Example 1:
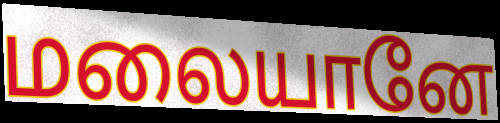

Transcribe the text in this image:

மலையானே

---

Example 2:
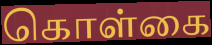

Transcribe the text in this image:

கொள்கை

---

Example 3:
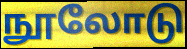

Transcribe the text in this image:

நூலோடு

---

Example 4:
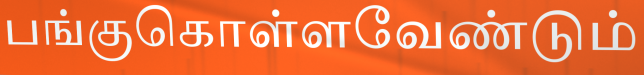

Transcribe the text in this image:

பங்குகொள்ளவேண்டும்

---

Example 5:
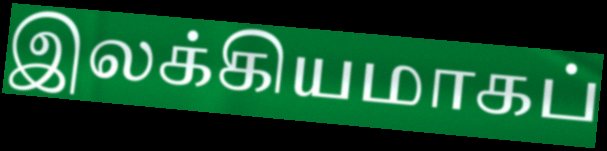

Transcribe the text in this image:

இலக்கியமாகப்